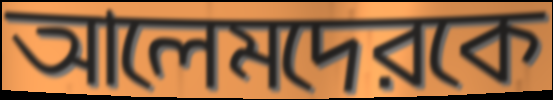
আলেমদেরকে